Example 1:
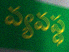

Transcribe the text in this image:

వ్యవస్ధ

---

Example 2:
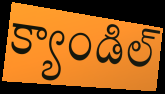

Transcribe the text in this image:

క్యాండిల్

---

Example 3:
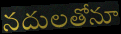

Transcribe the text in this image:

నదులతోనూ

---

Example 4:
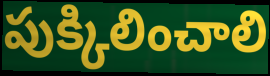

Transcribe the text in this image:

పుక్కిలించాలి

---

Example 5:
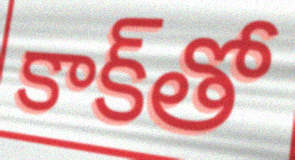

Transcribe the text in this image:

కాక్‌తో